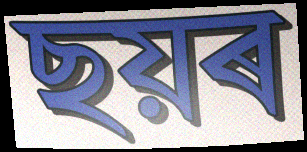
ছয়ৰ